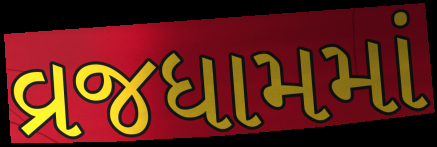
વ્રજધામમાં